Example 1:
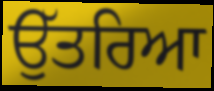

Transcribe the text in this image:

ਉੱਤਰਿਆ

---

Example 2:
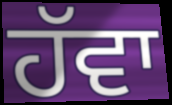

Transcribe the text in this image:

ਹੱਵਾ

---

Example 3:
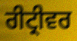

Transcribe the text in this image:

ਰੀਟ੍ਰੀਵਰ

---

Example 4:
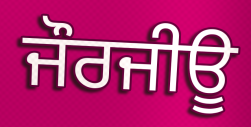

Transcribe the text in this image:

ਜੌਰਜੀਊ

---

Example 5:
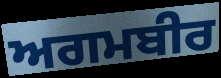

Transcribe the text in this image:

ਅਗਮਬੀਰ